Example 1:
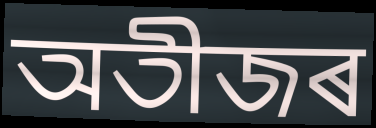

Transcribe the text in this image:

অতীজৰ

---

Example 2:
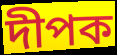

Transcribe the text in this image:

দীপক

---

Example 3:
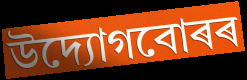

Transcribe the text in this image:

উদ্যোগবোৰৰ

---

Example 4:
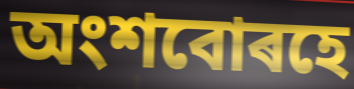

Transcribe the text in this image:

অংশবোৰহে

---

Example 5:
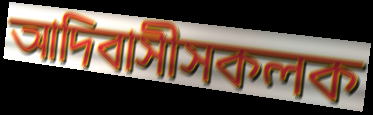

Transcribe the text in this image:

আদিবাসীসকলক